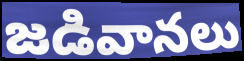
జడివానలు